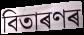
বিতাৰণৰ